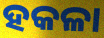
ହକଳା